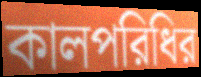
কালপরিধির